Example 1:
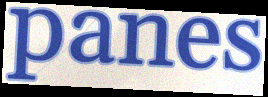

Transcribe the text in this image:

panes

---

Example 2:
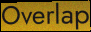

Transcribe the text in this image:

Overlap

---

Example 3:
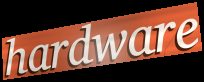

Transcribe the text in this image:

hardware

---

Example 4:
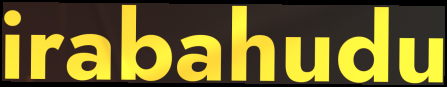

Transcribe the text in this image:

irabahudu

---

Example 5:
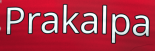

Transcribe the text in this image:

Prakalpa